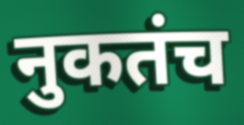
नुकतंच